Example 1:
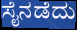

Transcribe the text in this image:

ಸೈನಡೆದು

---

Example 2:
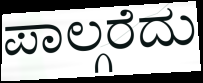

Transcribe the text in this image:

ಪಾಲ್ಗರೆದು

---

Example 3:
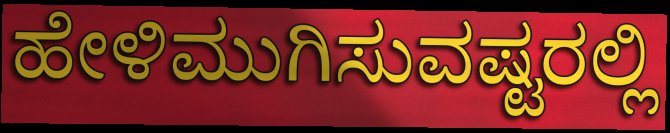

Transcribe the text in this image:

ಹೇಳಿಮುಗಿಸುವಷ್ಟರಲ್ಲಿ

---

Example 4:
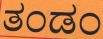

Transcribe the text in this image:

ತಂಡಂ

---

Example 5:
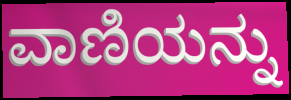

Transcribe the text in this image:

ವಾಣಿಯನ್ನು